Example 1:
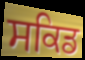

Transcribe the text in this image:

ਸਕਿਡ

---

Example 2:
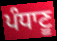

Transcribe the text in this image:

ਪੰਧਾਣੂ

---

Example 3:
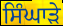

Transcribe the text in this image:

ਸਿੰਘਾੜੇ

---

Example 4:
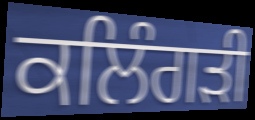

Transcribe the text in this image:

ਕਲਿੰਗੜੀ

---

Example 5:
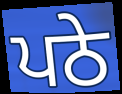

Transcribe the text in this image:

ਪਠੇ